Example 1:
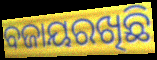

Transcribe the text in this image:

ବଜାୟରଖିଛି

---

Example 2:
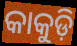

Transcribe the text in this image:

କାକୁଡ଼ି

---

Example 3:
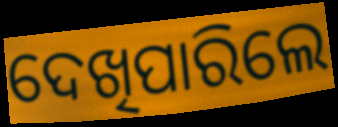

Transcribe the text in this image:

ଦେଖିପାରିଲେ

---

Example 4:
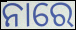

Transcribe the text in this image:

ନାରେ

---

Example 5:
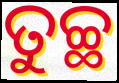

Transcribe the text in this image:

ତୁଚ୍ଛ